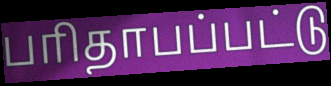
பரிதாபப்பட்டு